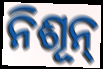
ନିଶୂନ୍